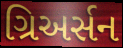
ગ્રિઅર્સન